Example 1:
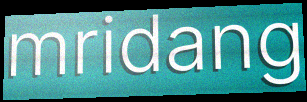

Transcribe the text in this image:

mridang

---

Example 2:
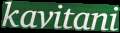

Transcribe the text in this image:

kavitani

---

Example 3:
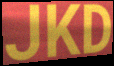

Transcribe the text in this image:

JKD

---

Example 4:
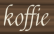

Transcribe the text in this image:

koffie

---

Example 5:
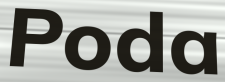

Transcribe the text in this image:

Poda